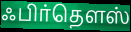
ஃபிர்தௌஸ்